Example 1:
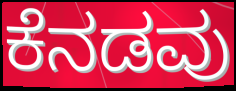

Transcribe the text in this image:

ಕೆನಡವು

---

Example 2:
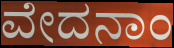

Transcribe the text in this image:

ವೇದನಾಂ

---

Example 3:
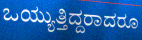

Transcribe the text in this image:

ಒಯ್ಯುತ್ತಿದ್ದರಾದರೂ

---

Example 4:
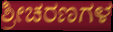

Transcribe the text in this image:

ಶ್ರೀಚರಣಗಳ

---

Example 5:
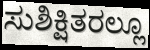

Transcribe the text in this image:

ಸುಶಿಕ್ಷಿತರಲ್ಲೂ